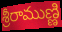
శ్రీరాముణ్ణి